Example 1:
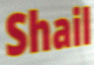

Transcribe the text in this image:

Shail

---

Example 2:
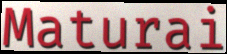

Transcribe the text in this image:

Maturai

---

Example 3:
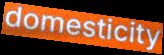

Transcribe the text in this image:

domesticity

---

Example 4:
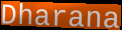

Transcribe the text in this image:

Dharana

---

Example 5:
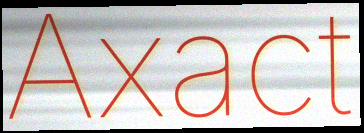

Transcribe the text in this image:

Axact